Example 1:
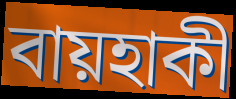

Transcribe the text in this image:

বায়হাকী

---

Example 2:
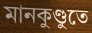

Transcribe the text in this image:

মানকুণ্ডুতে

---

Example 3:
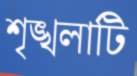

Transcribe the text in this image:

শৃঙ্খলাটি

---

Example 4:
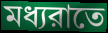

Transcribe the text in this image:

মধ্যরাতে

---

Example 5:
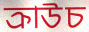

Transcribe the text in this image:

ক্রাউচ